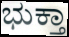
ಭುಕ್ತಾ